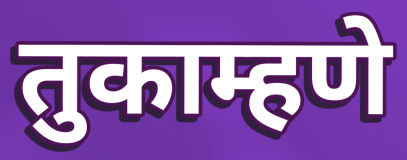
तुकाम्हणे